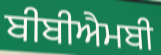
ਬੀਬੀਐਮਬੀ